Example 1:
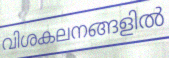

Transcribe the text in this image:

വിശകലനങ്ങളിൽ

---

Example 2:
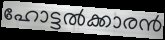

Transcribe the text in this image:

ഹോട്ടൽക്കാരൻ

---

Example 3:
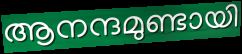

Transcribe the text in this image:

ആനന്ദമുണ്ടായി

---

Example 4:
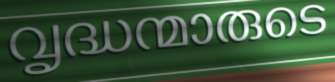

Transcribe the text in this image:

വൃദ്ധന്മാരുടെ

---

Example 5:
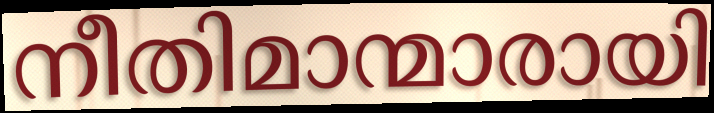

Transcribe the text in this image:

നീതിമാന്മാരായി